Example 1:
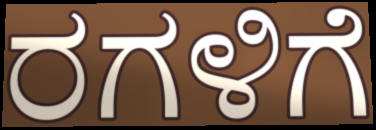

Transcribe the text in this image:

ರಗಳಿಗೆ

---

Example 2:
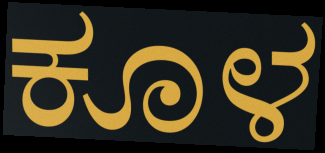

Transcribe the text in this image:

ಕೂಳ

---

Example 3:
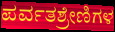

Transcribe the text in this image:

ಪರ್ವತಶ್ರೇಣಿಗಳ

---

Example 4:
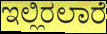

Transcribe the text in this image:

ಇಲ್ಲಿರಲಾರೆ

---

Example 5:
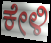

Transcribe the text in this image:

ಕೇಳಿ